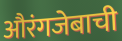
औरंगजेबाची